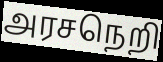
அரசநெறி